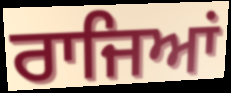
ਰਾਜਿਆਂ